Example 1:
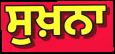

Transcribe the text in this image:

ਸੁਖ਼ਨਾ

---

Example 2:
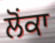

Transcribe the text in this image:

ਲੋਂਕਾ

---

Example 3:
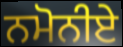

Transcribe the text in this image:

ਨਮੋਨੀਏ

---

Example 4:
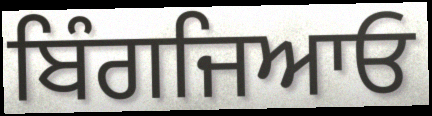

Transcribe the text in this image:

ਬਿੰਗਜਿਆਓ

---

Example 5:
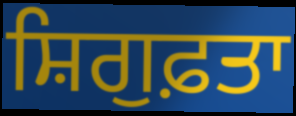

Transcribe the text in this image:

ਸ਼ਿਗੁਫ਼ਤਾ